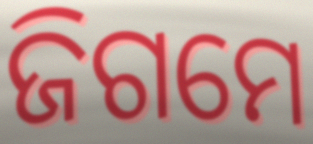
ଜିଗମେ